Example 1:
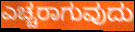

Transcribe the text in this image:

ಎಚ್ಚರಾಗುವುದು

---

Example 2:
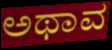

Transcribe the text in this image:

ಅಥಾವ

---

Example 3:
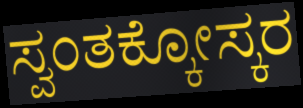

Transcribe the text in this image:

ಸ್ವಂತಕ್ಕೋಸ್ಕರ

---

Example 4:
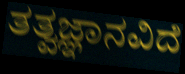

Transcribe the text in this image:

ತತ್ವಜ್ಞಾನವಿದೆ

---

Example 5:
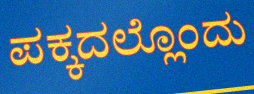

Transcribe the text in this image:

ಪಕ್ಕದಲ್ಲೊಂದು